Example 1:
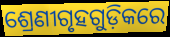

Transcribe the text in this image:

ଶ୍ରେଣୀଗୃହଗୁଡ଼ିକରେ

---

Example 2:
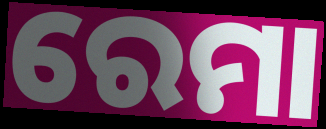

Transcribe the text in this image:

ରେମା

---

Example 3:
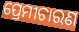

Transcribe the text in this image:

ପ୍ରେମୀଚାରଣ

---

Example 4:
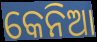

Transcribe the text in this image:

କେନିଆ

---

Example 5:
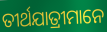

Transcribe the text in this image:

ତୀର୍ଥଯାତ୍ରୀମାନେ